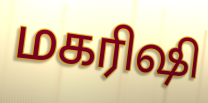
மகரிஷி